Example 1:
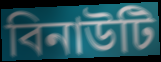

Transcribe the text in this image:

বিনাউটি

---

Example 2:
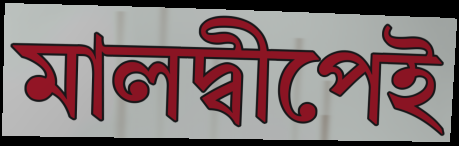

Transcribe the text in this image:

মালদ্বীপেই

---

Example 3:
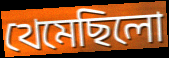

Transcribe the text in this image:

থেমেছিলো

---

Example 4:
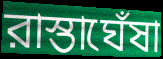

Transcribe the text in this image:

রাস্তাঘেঁষা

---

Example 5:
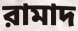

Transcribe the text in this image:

রামাদ